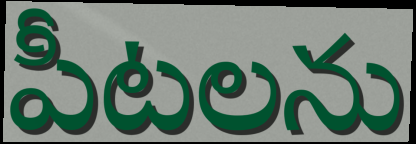
పీటలను